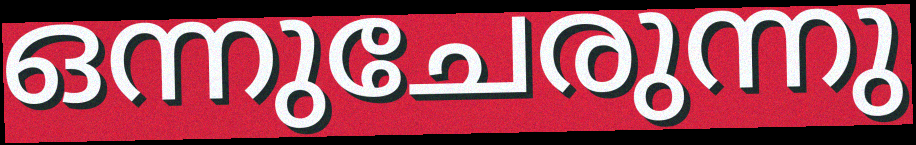
ഒന്നുചേരുന്നു